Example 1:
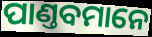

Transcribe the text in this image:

ପାଣ୍ତବମାନେ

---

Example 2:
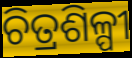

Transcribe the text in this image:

ଚିତ୍ରଶିଳ୍ପୀ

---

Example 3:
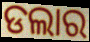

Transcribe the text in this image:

ଡଲାର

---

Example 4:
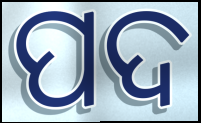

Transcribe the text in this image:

ପଦ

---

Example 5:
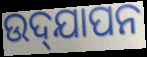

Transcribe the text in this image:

ଉଦ୍‌ଯାପନ